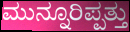
ಮುನ್ನೂರಿಪ್ಪತ್ತು